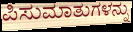
ಪಿಸುಮಾತುಗಳನ್ನು